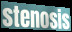
stenosis